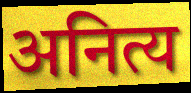
अनित्य